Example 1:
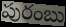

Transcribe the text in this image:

పురంబు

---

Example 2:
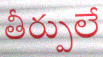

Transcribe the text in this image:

తీర్పులే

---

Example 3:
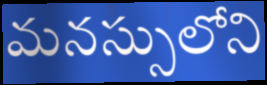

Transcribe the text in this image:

మనస్సులోని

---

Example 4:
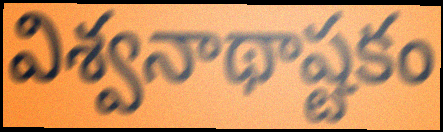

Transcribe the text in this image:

విశ్వనాథాష్టకం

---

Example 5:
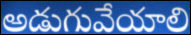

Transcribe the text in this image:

అడుగువేయాలి